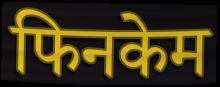
फिनकेम